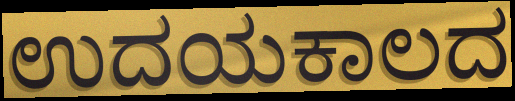
ಉದಯಕಾಲದ